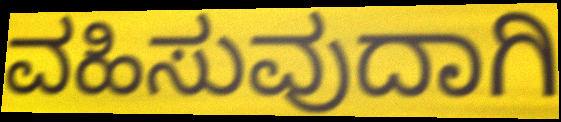
ವಹಿಸುವುದಾಗಿ